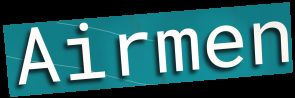
Airmen